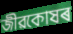
জীৱকোষৰ